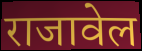
राजावेल